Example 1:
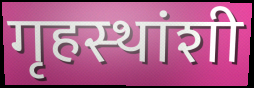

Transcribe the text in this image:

गृहस्थांशी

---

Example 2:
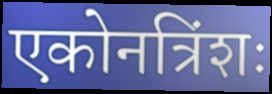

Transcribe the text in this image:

एकोनत्रिंशः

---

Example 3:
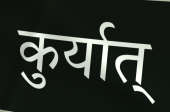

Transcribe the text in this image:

कुर्यात्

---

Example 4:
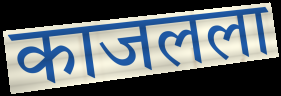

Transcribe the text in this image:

काजलला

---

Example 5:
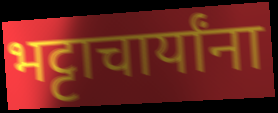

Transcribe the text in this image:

भट्टाचार्यांना